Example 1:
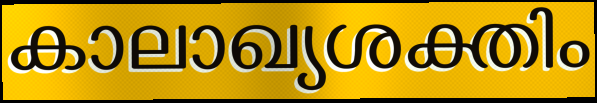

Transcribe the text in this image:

കാലാഖ്യശക്തിം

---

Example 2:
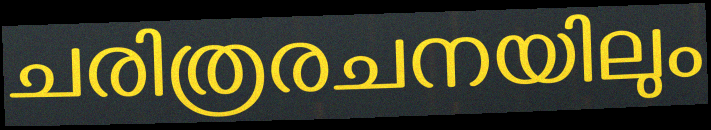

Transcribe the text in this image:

ചരിത്രരചനയിലും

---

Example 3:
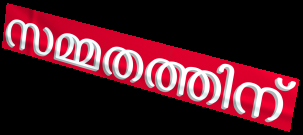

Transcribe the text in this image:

സമ്മതത്തിന്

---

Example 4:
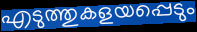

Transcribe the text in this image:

എടുത്തുകളയപ്പെടും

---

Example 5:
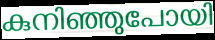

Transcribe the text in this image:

കുനിഞ്ഞുപോയി